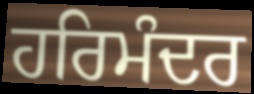
ਹਰਿਮੰਦਰ